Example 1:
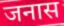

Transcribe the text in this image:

जनास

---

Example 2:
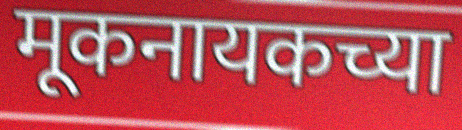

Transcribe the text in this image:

मूकनायकच्या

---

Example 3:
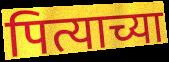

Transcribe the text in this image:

पित्याच्या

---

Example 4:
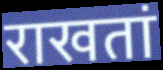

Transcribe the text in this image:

राखतां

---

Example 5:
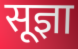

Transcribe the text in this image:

सूज्ञा